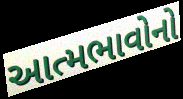
આત્મભાવોનો